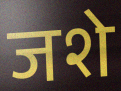
जशे